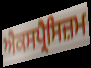
ਐਕਸਪ੍ਰੈਸਿਜ਼ਮ